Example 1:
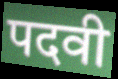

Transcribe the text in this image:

पदवी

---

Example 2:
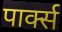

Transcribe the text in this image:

पार्क्स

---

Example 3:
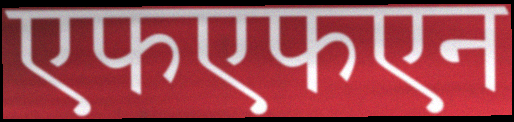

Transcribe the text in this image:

एफएफएन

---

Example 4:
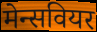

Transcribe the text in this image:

मेन्सवियर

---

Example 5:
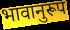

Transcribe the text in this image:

भावानुरूप